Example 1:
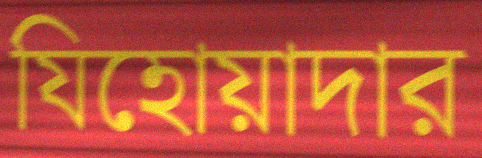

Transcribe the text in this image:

যিহোয়াদার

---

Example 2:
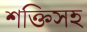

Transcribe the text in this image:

শক্তিসহ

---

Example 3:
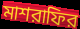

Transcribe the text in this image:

মাশরাফির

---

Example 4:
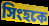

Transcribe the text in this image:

সিংহকে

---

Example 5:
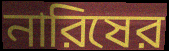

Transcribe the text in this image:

নারিষের